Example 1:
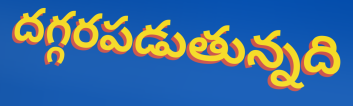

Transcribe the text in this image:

దగ్గరపడుతున్నది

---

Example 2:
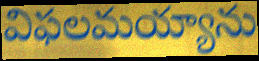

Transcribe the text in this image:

విఫలమయ్యాను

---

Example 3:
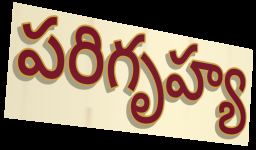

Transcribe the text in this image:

పరిగృహ్య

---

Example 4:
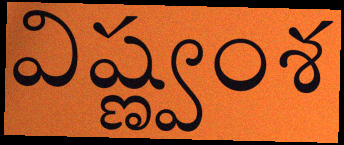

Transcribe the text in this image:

విష్ణ్వంశ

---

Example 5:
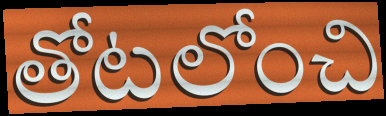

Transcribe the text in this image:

తోటలోంచి